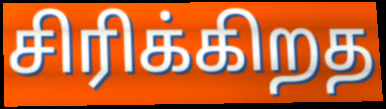
சிரிக்கிறத